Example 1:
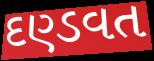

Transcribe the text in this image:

દણ્ડવત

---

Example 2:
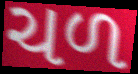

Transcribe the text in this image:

ચળ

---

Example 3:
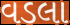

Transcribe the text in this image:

વડલા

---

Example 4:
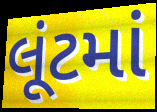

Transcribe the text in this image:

લૂંટમાં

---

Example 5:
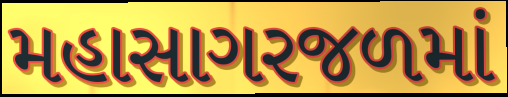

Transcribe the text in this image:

મહાસાગરજળમાં